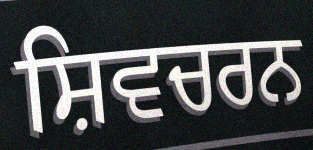
ਸ਼ਿਵਚਰਨ